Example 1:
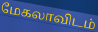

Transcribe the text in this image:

மேகலாவிடம்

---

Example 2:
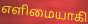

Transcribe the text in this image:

எளிமையாகி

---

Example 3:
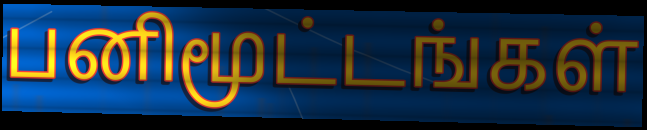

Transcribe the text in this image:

பனிமூட்டங்கள்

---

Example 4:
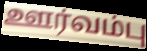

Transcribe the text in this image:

ஊர்வம்பு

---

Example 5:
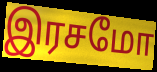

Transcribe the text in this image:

இரசமோ